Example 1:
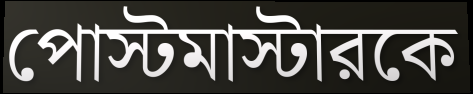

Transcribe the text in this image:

পোস্টমাস্টারকে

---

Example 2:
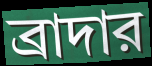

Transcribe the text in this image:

ব্রাদার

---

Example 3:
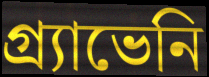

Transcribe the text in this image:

গ্র্যাভেনি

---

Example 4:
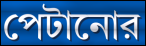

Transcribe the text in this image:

পেটানোর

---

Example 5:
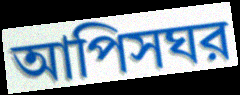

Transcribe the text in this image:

আপিসঘর